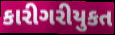
કારીગરીયુકત